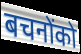
बचनोंको